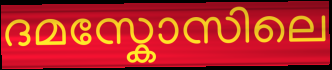
ദമസ്കോസിലെ